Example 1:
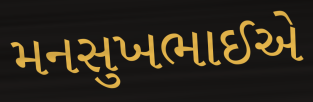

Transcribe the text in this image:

મનસુખભાઈએ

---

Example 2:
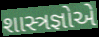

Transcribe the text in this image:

શાસ્ત્રજ્ઞોએ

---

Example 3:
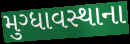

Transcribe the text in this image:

મુગ્ધાવસ્થાના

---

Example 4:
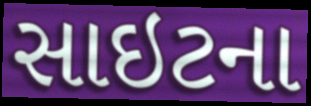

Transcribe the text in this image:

સાઇટના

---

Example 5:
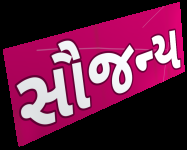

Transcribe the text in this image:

સૌજન્ય